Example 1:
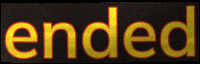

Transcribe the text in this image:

ended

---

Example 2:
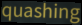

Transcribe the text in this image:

quashing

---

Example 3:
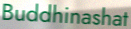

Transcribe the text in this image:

Buddhinashat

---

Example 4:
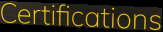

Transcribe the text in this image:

Certifications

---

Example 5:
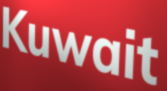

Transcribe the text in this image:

Kuwait